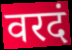
वरदं